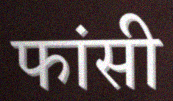
फांसी